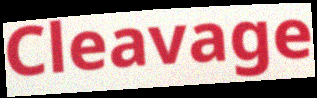
Cleavage